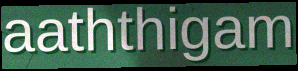
aaththigam